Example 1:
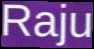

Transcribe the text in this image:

Raju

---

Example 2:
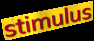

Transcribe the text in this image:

stimulus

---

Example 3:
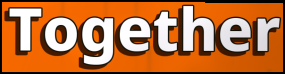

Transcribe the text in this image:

Together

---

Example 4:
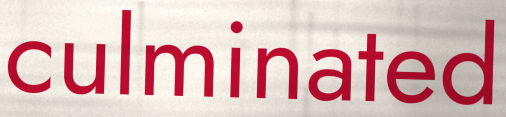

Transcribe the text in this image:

culminated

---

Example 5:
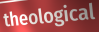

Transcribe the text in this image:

theological